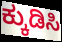
ಕ್ಕುಡಿಸಿ